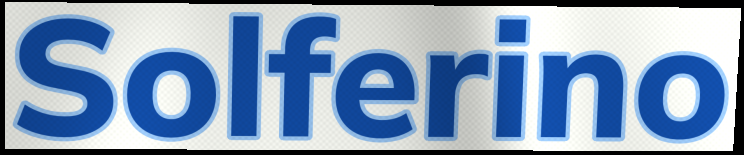
Solferino